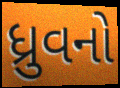
ધ્રુવનો